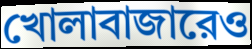
খোলাবাজারেও